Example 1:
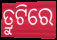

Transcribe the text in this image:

ତ୍ରୁଟିରେ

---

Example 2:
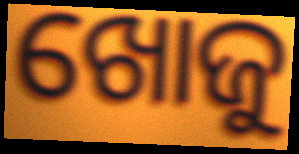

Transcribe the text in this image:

ଖୋଜୁ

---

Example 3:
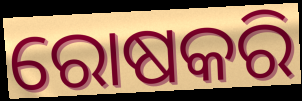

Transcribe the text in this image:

ରୋଷକରି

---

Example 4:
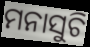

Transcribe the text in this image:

ମନାସୁଚି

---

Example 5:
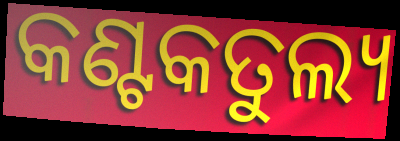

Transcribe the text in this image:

କଣ୍ଟକତୁଲ୍ୟ